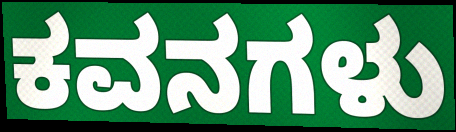
ಕವನಗಳು